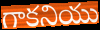
గాకనియు